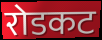
रोडकट